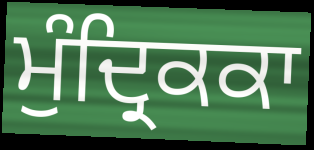
ਮੁੰਦ੍ਰਿਕਕਾ